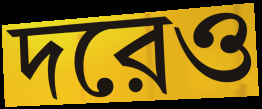
দরেও